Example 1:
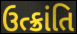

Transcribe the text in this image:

ઉત્ક્રાંતિ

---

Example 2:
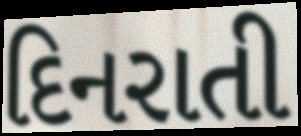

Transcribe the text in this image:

દિનરાતી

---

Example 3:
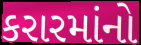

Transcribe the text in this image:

કરારમાંનો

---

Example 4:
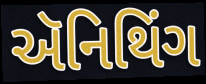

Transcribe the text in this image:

ઍનિથિંગ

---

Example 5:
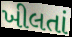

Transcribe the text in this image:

ખીલતાં